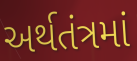
અર્થતંત્રમાં